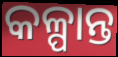
କଳ୍ପାନ୍ତ